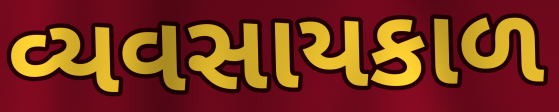
વ્યવસાયકાળ